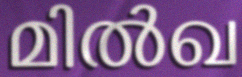
മിൽഖ